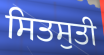
ਸਿਤਸੁਤੀ